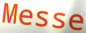
Messe